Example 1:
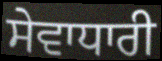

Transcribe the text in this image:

ਸੇਵਾਧਾਰੀ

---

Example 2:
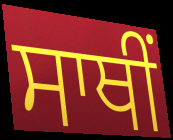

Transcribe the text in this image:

ਸਾਥੀਂ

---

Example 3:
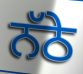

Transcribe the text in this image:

ਨੱਠੇ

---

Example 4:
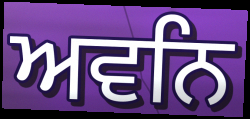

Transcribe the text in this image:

ਅਵਨਿ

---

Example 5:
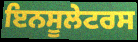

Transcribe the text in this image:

ਇਨਸੂਲੇਟਰਸ